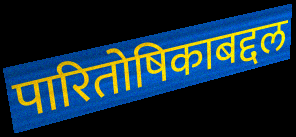
पारितोषिकाबद्दल